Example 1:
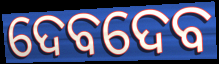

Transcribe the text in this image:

ଦେବଦେବ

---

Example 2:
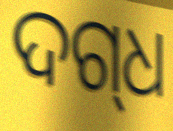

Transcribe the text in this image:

ଦଗ୍‍ଧ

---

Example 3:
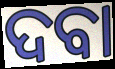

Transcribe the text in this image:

ଦବା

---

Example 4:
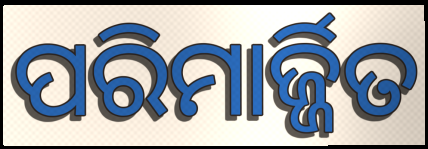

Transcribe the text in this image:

ପରିମାର୍ଜ୍ଜିତ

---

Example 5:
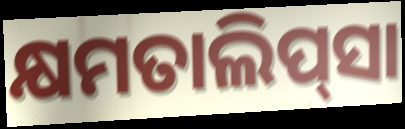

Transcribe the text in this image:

କ୍ଷମତାଲିପ୍‍ସା